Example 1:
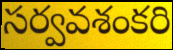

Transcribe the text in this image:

సర్వవశంకరి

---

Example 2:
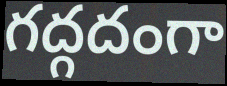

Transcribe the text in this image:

గద్గదంగా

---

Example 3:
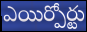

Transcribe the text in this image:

ఎయిర్పోర్టు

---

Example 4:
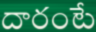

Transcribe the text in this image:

దారంటే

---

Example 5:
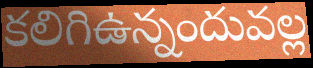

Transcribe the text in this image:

కలిగిఉన్నందువల్ల